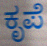
ಕೃಪೆ